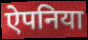
ऐपनिया